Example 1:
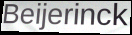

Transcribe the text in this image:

Beijerinck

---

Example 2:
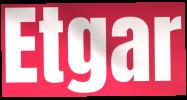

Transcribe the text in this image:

Etgar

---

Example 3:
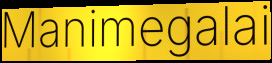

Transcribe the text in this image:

Manimegalai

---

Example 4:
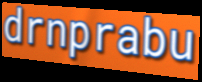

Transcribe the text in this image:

drnprabu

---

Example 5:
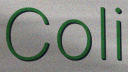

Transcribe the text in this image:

Coli